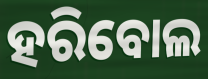
ହରିବୋଲ